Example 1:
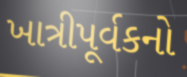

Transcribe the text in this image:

ખાત્રીપૂર્વકનો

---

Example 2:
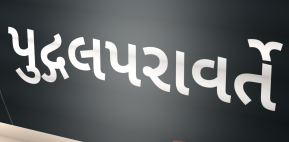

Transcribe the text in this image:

પુદ્ગલપરાવર્તે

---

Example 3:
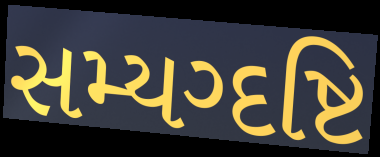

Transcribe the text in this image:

સમ્યગ્દષ્ટિ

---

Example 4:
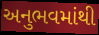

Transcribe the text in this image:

અનુભવમાંથી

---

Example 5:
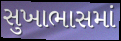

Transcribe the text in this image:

સુખાભાસમાં